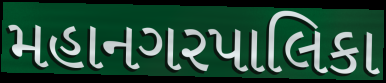
મહાનગરપાલિકા